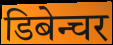
डिबेन्चर